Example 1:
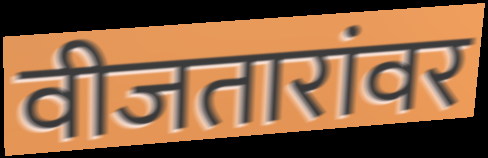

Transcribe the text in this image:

वीजतारांवर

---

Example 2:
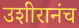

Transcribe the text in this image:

उशीरानंच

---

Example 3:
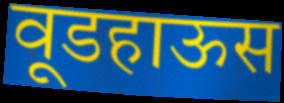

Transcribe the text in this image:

वूडहाऊस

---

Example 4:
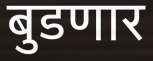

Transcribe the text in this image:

बुडणार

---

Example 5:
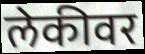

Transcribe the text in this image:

लेकीवर